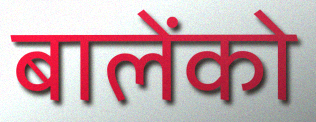
बालेंको